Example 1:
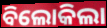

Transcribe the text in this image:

ବିଲୋକିଲା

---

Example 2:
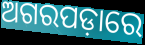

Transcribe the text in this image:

ଅଗରପଡ଼ାରେ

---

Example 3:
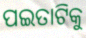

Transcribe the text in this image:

ପଇତାଟିକୁ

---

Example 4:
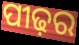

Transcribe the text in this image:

ପୀଢ଼ର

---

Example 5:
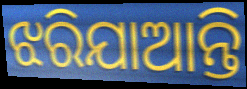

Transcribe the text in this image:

ଝରିଯାଆନ୍ତି